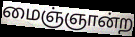
மைஞ்ஞான்ற